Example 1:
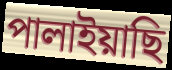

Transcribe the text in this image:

পালাইয়াছি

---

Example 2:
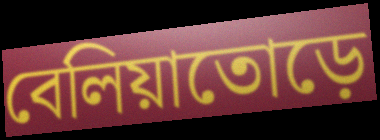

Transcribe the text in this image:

বেলিয়াতোড়ে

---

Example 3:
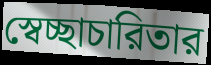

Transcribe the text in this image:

স্বেচ্ছাচারিতার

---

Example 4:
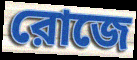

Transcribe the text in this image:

রোজে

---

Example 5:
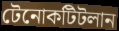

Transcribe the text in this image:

টেনোকটিটলান